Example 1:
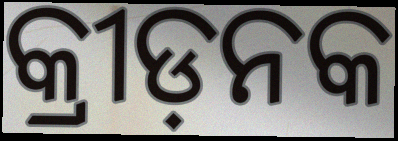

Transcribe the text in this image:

କ୍ରୀଡ଼ନକ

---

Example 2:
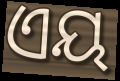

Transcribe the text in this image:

ଏୟ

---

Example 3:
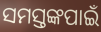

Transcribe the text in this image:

ସମସ୍ତଙ୍କପାଇଁ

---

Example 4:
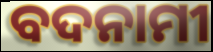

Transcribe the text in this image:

ବଦନାମୀ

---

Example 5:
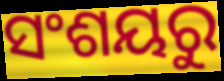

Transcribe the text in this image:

ସଂଶୟରୁ